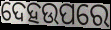
ଦେହଉପରେ